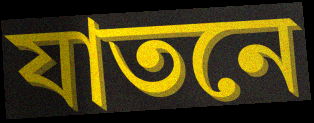
যাতনে